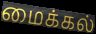
மைக்கல்